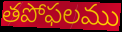
తపోఫలము